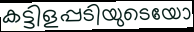
കട്ടിളപ്പടിയുടെയോ